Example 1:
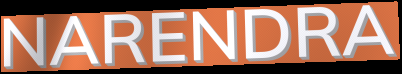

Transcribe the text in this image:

NARENDRA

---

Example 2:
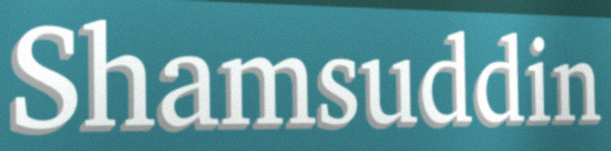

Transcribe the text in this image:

Shamsuddin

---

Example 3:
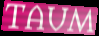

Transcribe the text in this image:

TAUM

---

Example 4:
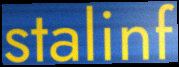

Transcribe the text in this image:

stalinf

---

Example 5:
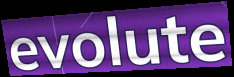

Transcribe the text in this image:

evolute